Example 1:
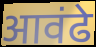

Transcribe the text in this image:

आवंढे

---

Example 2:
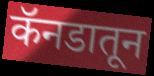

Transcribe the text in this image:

कॅनडातून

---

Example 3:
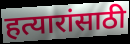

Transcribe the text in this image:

हत्यारांसाठी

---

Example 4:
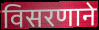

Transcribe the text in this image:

विसरणाने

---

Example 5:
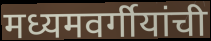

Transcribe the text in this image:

मध्यमवर्गीयांची